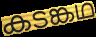
കടങ്കഥ